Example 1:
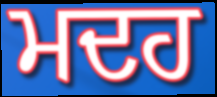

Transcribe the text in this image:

ਮਦਹ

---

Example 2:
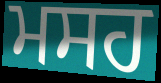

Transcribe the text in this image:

ਮਸਹ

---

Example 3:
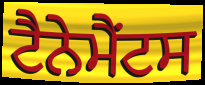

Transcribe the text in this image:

ਟੈਨੇਮੈਂਟਸ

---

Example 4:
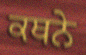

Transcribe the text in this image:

ਕਥਨੇ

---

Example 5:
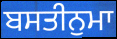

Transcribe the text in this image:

ਬਸਤੀਨੁਮਾ